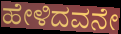
ಹೇಳಿದವನೇ